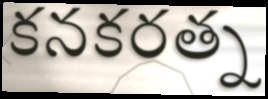
కనకరత్న